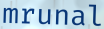
mrunal